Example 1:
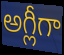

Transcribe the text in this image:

అగ్లీగా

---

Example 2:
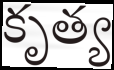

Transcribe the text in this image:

కృత్య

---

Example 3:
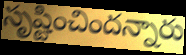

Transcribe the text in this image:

సృష్టించిందన్నారు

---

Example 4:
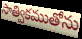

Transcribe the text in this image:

సాత్వికముతోను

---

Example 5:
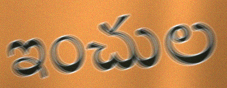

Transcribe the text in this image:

ఇంచుల